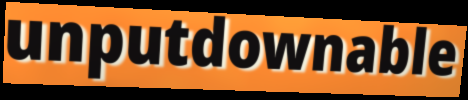
unputdownable